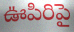
ఊపిరిపై